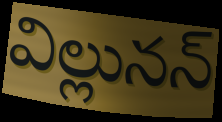
విల్లునన్